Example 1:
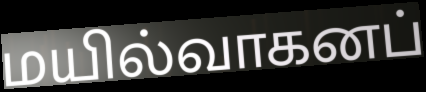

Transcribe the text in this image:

மயில்வாகனப்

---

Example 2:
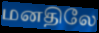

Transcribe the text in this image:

மனதிலே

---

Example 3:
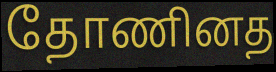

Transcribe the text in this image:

தோணினத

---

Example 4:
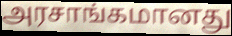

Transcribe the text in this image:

அரசாங்கமானது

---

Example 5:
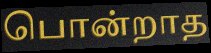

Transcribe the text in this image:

பொன்றாத